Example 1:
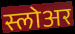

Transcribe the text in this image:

स्लोअर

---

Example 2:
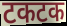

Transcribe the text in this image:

टकटक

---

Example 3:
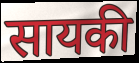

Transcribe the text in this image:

सायकी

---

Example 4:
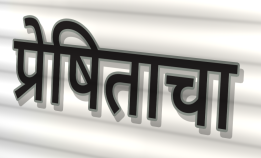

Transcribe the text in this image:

प्रेषिताचा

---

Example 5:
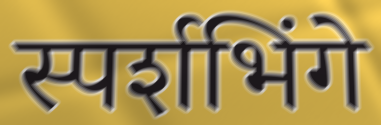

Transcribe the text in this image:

स्पर्शभिंगे